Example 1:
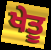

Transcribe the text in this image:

ਖੇਤੂ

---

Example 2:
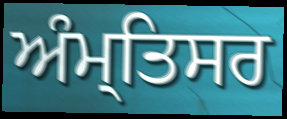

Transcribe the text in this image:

ਅੰਮ੍ਤਿਸਰ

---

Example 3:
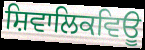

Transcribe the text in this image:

ਸ਼ਿਵਾਲਿਕਵਿਊ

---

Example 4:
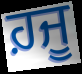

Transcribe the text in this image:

ਹ਼ਜੂ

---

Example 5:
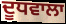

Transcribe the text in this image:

ਦੂਧਵਾਲਾ